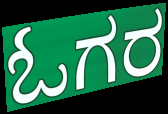
ಓಗರ